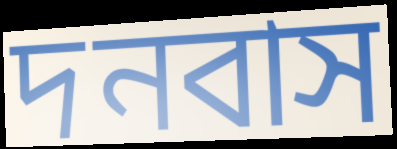
দনবাস